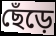
ছেঁড়ে